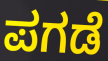
ಪಗಡೆ